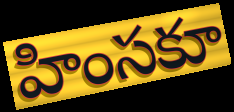
హింసకూ